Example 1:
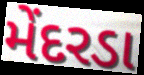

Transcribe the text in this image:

મેંદરડા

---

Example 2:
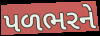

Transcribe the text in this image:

પળભરને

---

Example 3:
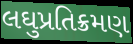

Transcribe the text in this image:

લઘુપ્રતિક્રમણ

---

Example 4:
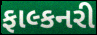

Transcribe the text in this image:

ફાલ્કનરી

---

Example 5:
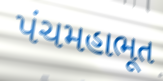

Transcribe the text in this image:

પંચમહાભૂત